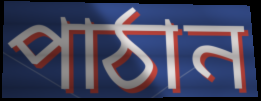
পাঠান